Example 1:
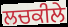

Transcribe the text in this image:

ਲਚਕੀਲੇ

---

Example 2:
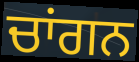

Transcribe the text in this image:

ਚਾਂਗਨ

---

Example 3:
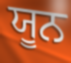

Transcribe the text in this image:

ਯੂਨ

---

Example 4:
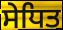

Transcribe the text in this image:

ਸੇਧਿਤ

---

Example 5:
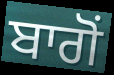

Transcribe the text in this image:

ਬਾਗੋਂ